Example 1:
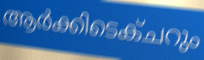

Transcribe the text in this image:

ആർക്കിടെക്ചറും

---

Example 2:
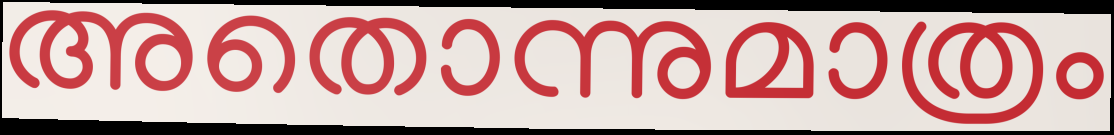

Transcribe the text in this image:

അതൊന്നുമാത്രം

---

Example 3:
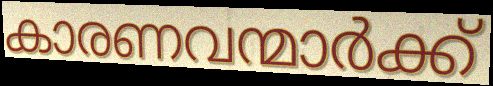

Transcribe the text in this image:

കാരണവന്മാർക്ക്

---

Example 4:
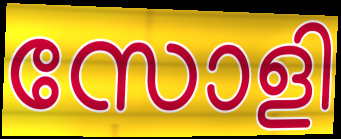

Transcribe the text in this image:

സോളി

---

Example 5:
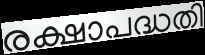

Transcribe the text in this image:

രക്ഷാപദ്ധതി